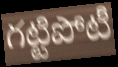
గట్టిపోటీ